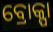
ବ୍ରୋକ୍ପା